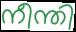
നീന്തി